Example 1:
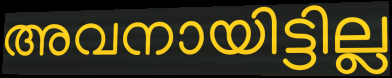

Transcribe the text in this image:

അവനായിട്ടില്ല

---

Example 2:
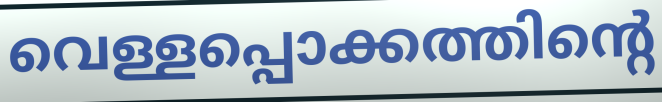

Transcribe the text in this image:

വെള്ളപ്പൊക്കത്തിന്റെ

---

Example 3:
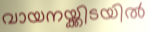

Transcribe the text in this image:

വായനയ്ക്കിടയിൽ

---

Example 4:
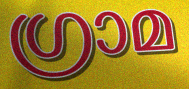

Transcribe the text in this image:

ഗ്രാമ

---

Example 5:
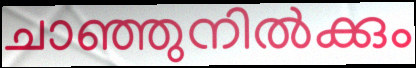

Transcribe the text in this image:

ചാഞ്ഞുനിൽക്കും